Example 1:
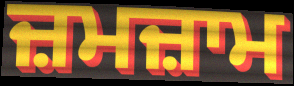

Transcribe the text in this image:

ਜ਼ਮਜ਼ਾਮ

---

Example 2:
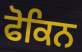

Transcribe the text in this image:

ਫੋਕਿਨ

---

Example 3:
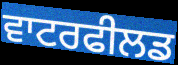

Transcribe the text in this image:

ਵਾਟਰਫੀਲਡ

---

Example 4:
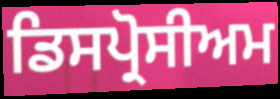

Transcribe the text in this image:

ਡਿਸਪ੍ਰੋਸੀਅਮ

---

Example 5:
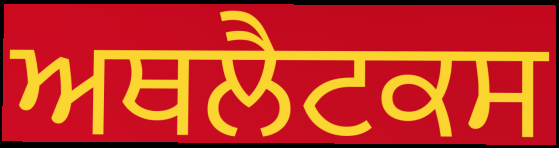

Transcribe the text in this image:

ਅਥਲੈਟਕਸ